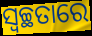
ସ୍ବଚ୍ଛତାରେ